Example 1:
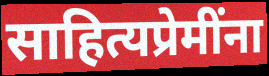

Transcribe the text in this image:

साहित्यप्रेमींना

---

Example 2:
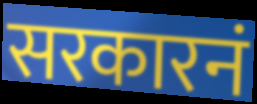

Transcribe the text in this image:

सरकारनं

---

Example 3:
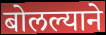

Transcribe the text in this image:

बोलल्याने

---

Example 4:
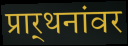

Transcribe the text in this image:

प्रार्थनांवर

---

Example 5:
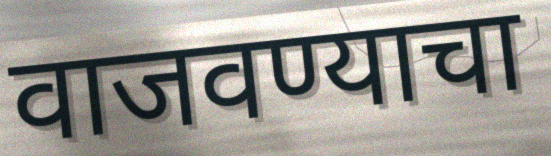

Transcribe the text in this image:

वाजवण्याचा